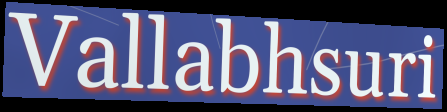
Vallabhsuri